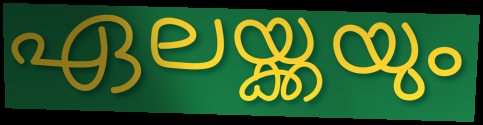
ഏലയ്ക്കയും